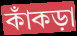
কাঁকড়া